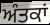
ਅੰਤਕਾਂ